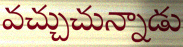
వచ్చుచున్నాడు